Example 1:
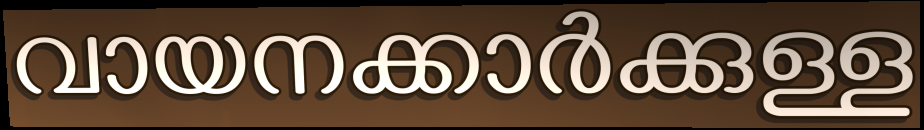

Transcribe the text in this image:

വായനക്കാർക്കുള്ള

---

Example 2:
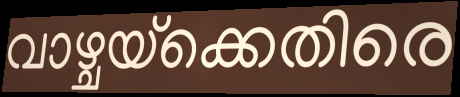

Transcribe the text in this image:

വാഴ്ചയ്‌ക്കെതിരെ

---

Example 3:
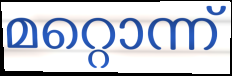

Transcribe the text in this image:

മറ്റൊന്ന്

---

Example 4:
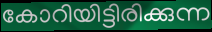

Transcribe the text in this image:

കോറിയിട്ടിരിക്കുന്ന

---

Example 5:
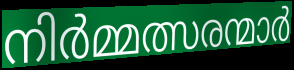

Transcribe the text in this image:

നിർമ്മത്സരന്മാർ